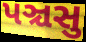
પઞ્ચસુ